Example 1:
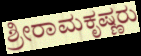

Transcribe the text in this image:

ಶ್ರೀರಾಮಕೃಷ್ಣರು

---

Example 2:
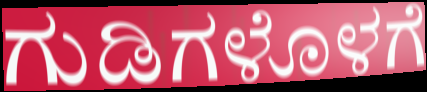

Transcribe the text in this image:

ಗುಡಿಗಳೊಳಗೆ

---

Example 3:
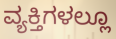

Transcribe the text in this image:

ವ್ಯಕ್ತಿಗಳಲ್ಲೂ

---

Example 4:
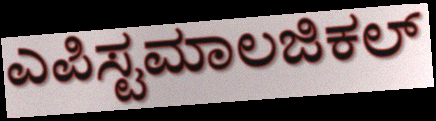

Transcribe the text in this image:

ಎಪಿಸ್ಟಮಾಲಜಿಕಲ್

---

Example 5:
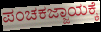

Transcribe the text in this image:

ಪಂಚಕಜ್ಜಾಯಕ್ಕೆ